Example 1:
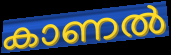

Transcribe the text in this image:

കാണൽ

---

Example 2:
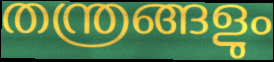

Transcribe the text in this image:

തന്ത്രങ്ങളും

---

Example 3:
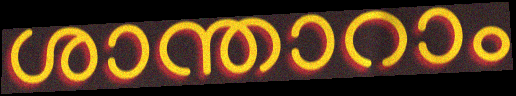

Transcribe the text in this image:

ശാന്താറാം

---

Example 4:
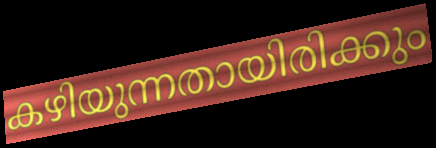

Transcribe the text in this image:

കഴിയുന്നതായിരിക്കും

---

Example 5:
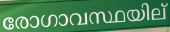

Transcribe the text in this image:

രോഗാവസ്ഥയില്